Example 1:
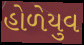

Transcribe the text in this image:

હોળેયુવ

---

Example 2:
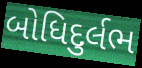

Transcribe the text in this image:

બોધિદુર્લભ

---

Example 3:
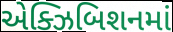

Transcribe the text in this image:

એક્ઝિબિશનમાં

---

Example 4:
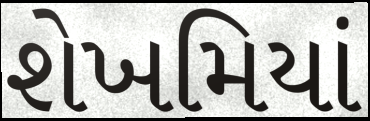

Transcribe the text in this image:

શેખમિયાં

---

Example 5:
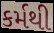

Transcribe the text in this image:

કર્મથી